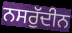
ਨਸਰੁੱਦੀਨ